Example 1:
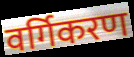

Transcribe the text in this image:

वर्गिकरण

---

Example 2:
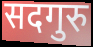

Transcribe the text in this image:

सदगुरु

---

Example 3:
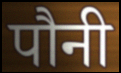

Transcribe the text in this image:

पौनी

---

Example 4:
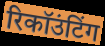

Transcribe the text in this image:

रिकॉउंटिंग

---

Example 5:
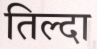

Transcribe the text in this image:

तिल्दा